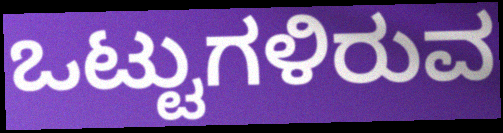
ಒಟ್ಟುಗಳಿರುವ